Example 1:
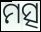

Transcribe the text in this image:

ମତ୍ସ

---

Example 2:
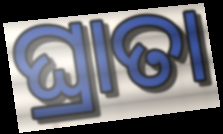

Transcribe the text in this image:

ଘ୍ରାତା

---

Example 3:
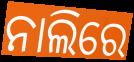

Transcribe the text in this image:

ନାଲିରେ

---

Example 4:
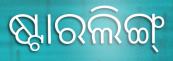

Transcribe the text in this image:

ଷ୍ଟାରଲିଙ୍ଗ୍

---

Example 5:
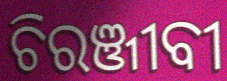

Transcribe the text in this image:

ଚିରଞ୍ଜୀବୀ